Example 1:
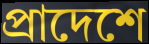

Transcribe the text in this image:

প্রাদেশে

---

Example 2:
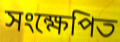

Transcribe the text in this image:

সংক্ষেপিত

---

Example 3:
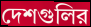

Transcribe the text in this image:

দেশগুলির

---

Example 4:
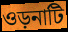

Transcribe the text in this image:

ওড়নাটি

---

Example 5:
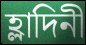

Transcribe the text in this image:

হ্লাদিনী